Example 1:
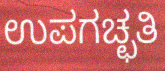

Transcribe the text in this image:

ಉಪಗಚ್ಛತಿ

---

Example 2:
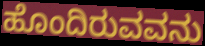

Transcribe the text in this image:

ಹೊಂದಿರುವವನು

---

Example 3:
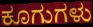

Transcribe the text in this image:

ಕೂಗುಗಳು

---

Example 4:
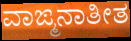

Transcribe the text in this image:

ವಾಙ್ಮನಾತೀತ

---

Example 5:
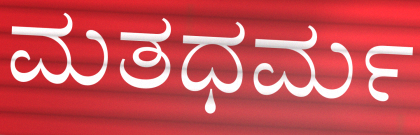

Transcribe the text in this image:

ಮತಧರ್ಮ